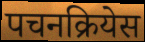
पचनक्रियेस